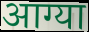
आग्या